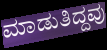
ಮಾಡುತಿದ್ದವು